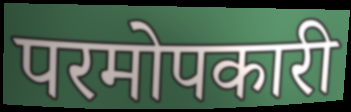
परमोपकारी